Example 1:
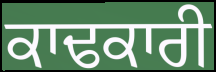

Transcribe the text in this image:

ਕਾਢਕਾਰੀ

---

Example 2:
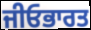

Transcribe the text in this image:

ਜੀਓਭਾਰਤ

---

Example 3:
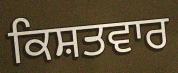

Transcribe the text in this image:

ਕਿਸ਼ਤਵਾਰ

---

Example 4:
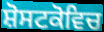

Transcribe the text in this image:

ਸ਼ੋਸਟਕੋਵਿਚ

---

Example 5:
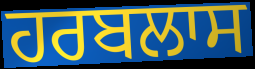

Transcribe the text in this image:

ਹਰਬਲਾਸ